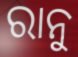
ରାନୁ